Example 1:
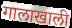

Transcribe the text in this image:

गालाखाली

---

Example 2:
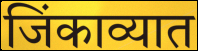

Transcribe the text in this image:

जिंकाव्यात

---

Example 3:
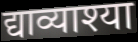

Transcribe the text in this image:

द्याव्याश्या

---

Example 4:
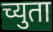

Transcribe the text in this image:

च्युता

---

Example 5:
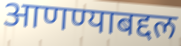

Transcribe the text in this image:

आणण्याबद्दल